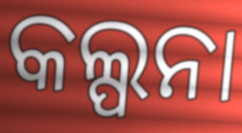
କଲ୍ପନା